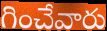
గించేవారు